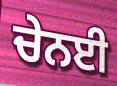
ਚੇਨਈ